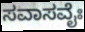
ಸವಾಸವೈಃ